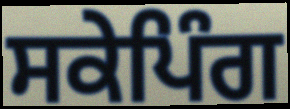
ਸਕੇਪਿੰਗ